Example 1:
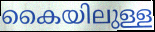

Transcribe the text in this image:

കൈയിലുള്ള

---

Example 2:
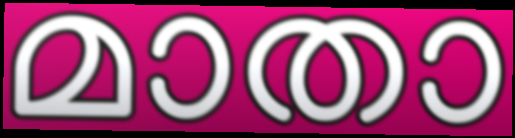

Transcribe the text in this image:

മാതാ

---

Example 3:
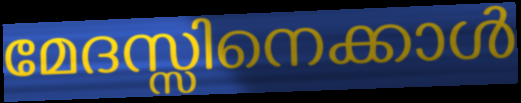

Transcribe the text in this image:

മേദസ്സിനെക്കാൾ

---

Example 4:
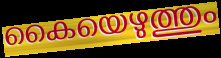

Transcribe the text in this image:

കൈയെഴുത്തും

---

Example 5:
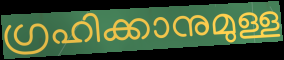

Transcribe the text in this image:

ഗ്രഹിക്കാനുമുള്ള